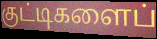
குட்டிகளைப்